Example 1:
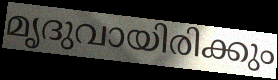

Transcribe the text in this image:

മൃദുവായിരിക്കും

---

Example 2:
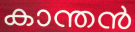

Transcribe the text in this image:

കാന്തൻ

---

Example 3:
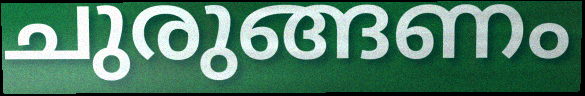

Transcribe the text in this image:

ചുരുങ്ങണം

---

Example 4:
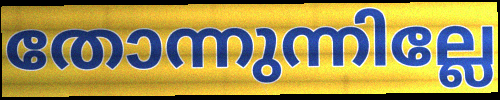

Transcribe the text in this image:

തോന്നുന്നില്ലേ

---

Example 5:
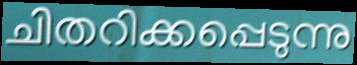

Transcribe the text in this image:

ചിതറിക്കപ്പെടുന്നു